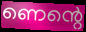
ണെന്റെ